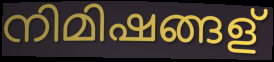
നിമിഷങ്ങള്